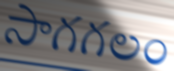
సాగగలం